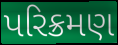
પરિક્રમણ